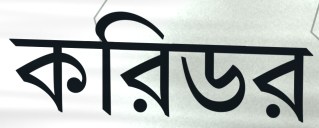
করিডর